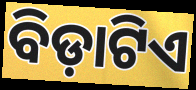
ବିଡ଼ାଟିଏ